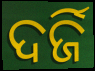
ଦର୍ଜି